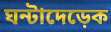
ঘন্টাদেড়েক